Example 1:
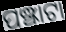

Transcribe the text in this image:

ପଞ୍ଝାଟା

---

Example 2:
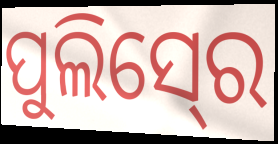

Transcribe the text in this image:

ପୁଲିସ୍‍ରେ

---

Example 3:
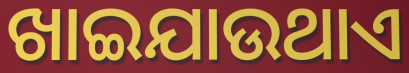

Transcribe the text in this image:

ଖାଇଯାଉଥାଏ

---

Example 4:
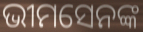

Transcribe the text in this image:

ଭୀମସେନଙ୍କ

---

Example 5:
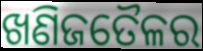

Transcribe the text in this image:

ଖଣିଜତୈଳର